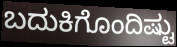
ಬದುಕಿಗೊಂದಿಷ್ಟು